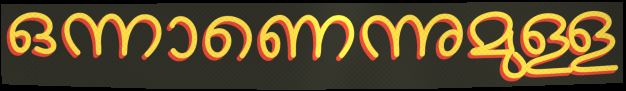
ഒന്നാണെന്നുമുള്ള